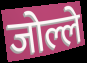
जोल्ले